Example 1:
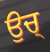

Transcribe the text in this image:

ਉਚ੍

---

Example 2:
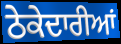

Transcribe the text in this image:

ਠੇਕੇਦਾਰੀਆਂ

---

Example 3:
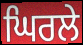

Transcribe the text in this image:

ਘਿਰਲੇ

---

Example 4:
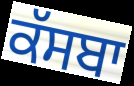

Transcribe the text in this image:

ਕੱਸਬਾ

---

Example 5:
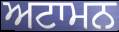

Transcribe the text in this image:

ਅਟਾਮਨ